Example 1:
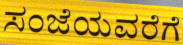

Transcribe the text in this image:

ಸಂಜೆಯವರೆಗೆ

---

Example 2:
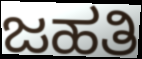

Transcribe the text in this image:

ಜಹತಿ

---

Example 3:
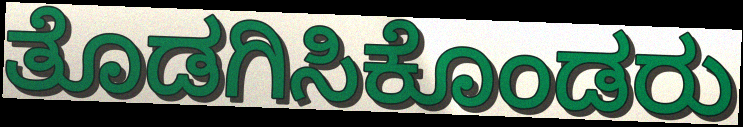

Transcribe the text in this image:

ತೊಡಗಿಸಿಕೊಂಡರು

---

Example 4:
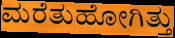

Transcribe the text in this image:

ಮರೆತುಹೋಗಿತ್ತು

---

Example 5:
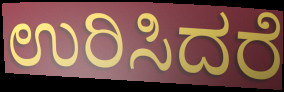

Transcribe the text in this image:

ಉರಿಸಿದರೆ